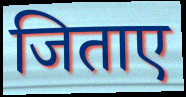
जिताए